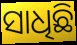
ସାଧିଛି